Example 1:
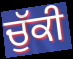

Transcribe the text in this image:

ਚੁੱਕੀ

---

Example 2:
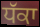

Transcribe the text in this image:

ਧੱਕਾ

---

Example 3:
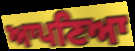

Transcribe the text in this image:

ਆਪਣਿਆ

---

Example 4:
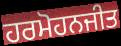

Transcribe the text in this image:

ਹਰਮੋਹਨਜੀਤ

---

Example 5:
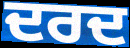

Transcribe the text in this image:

ਦਰਦ